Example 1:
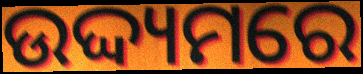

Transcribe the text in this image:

ଉଦ୍ଦ୍ୟମରେ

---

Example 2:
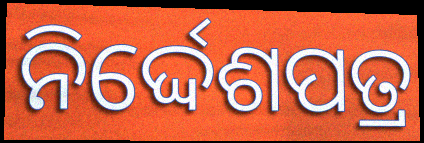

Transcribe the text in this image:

ନିର୍ଦ୍ଦେଶପତ୍ର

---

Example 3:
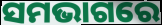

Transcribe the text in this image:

ସମଭାଗରେ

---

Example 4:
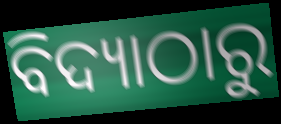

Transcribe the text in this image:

ବିଦ୍ୟାଠାରୁ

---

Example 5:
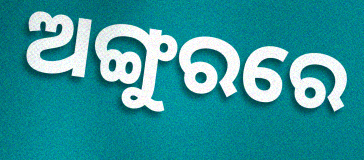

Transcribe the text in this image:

ଅଙ୍ଗୁରରେ